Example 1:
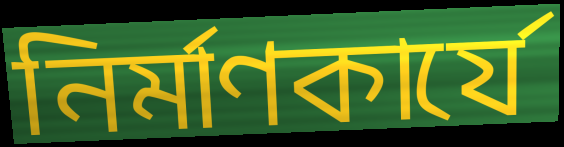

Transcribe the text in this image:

নির্মাণকার্যে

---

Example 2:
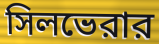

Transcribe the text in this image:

সিলভেরার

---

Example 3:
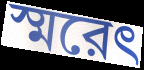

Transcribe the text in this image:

স্মরেৎ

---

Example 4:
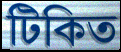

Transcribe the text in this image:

টিকিত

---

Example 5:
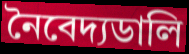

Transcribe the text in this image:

নৈবেদ্যডালি